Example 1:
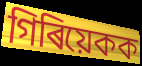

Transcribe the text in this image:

গিৰিয়েকক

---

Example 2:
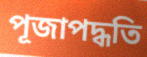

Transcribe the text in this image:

পূজাপদ্ধতি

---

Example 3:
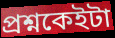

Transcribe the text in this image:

প্ৰশ্নকেইটা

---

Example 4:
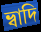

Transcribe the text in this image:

ভ্বাদি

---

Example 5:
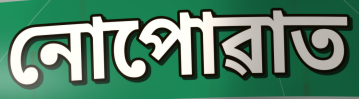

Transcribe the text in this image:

নোপোৱাত